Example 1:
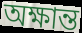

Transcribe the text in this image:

অক্ষান্ত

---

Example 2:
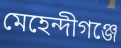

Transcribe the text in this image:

মেহেন্দীগঞ্জে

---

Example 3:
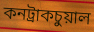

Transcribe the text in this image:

কনট্রাকচুয়াল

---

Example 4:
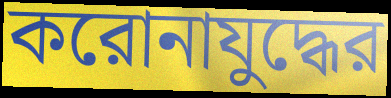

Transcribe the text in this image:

করোনাযুদ্ধের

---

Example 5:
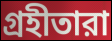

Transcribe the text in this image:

গ্রহীতারা